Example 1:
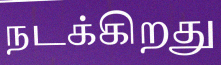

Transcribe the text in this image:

நடக்கிறது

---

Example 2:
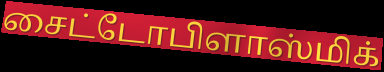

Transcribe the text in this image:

சைட்டோபிளாஸ்மிக்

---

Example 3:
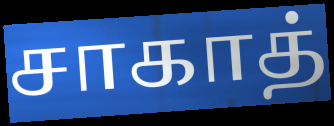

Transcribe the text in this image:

சாகாத்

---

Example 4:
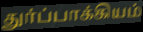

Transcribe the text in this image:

துர்ப்பாக்கியம்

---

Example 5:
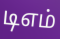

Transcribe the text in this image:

டிஎம்